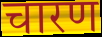
चारण